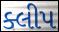
ક્લીપ